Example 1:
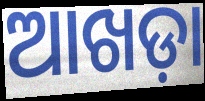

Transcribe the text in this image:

ଆଖଡ଼ା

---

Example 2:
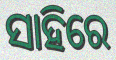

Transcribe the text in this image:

ସାହିରେ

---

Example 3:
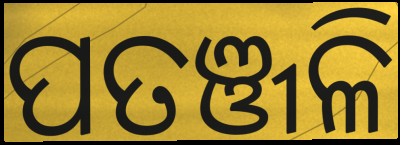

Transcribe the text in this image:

ପତଞ୍ଜଳି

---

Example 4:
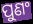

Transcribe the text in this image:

ପୁଣଂ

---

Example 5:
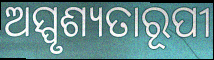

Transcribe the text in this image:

ଅସ୍ପୃଶ୍ୟତାରୂପୀ